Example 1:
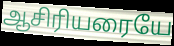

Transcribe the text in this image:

ஆசிரியரையே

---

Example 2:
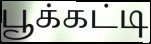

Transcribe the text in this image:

பூக்கட்டி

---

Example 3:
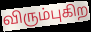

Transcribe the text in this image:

விரும்புகிற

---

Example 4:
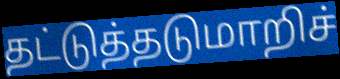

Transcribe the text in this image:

தட்டுத்தடுமாறிச்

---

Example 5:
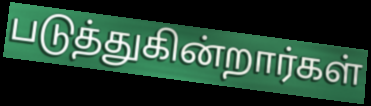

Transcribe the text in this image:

படுத்துகின்றார்கள்